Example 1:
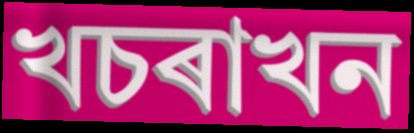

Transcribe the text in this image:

খচৰাখন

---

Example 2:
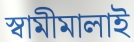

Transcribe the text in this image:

স্বামীমালাই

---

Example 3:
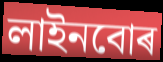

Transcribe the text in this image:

লাইনবোৰ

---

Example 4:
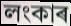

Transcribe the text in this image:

লংকাৰ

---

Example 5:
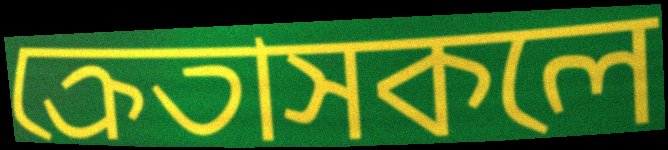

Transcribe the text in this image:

ক্ৰেতাসকলে